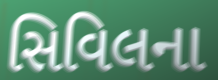
સિવિલના